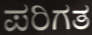
ಪರಿಗತ